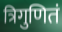
त्रिगुणितं